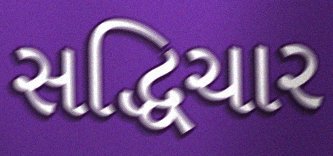
સદ્ધિચાર